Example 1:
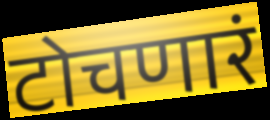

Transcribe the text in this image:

टोचणारं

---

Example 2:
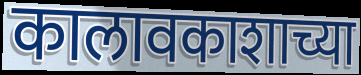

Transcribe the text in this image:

कालावकाशाच्या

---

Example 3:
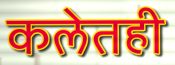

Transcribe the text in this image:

कलेतही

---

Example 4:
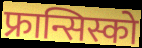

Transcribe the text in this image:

फ्रान्सिस्को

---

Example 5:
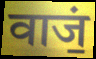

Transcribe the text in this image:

वाजं॒